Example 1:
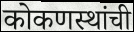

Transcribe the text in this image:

कोकणस्थांची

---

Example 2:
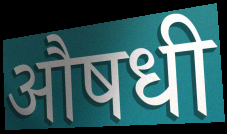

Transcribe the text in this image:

औषधी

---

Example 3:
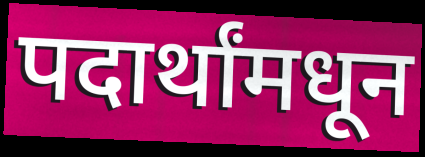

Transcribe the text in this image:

पदार्थांमधून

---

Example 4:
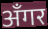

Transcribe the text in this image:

अँगर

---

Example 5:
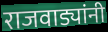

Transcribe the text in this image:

राजवाड्यांनी